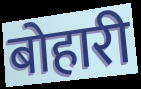
बोहारी